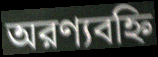
অরণ্যবহ্নি